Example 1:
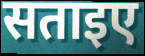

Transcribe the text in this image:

सताइए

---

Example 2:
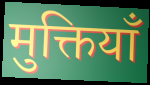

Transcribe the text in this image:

मुक्तियाँ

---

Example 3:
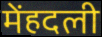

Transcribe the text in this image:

मेंहदली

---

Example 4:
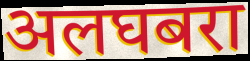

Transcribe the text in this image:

अलघबरा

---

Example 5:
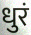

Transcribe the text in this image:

धुरं